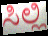
ಸಿಲ್ಲಿ